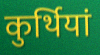
कुर्थियां